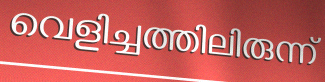
വെളിച്ചത്തിലിരുന്ന്